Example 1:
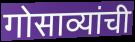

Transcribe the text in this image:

गोसाव्यांची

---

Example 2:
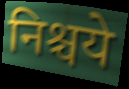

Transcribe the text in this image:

निश्चये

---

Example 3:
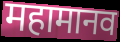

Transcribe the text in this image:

महामानव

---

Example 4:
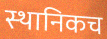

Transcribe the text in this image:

स्थानिकच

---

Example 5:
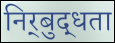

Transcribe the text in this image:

निर्बुद्धता